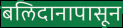
बलिदानापासून